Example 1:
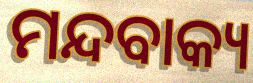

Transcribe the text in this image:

ମନ୍ଦବାକ୍ୟ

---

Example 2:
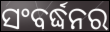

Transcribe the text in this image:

ସଂବର୍ଦ୍ଧନର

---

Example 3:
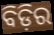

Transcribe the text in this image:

ବିଡ଼ିର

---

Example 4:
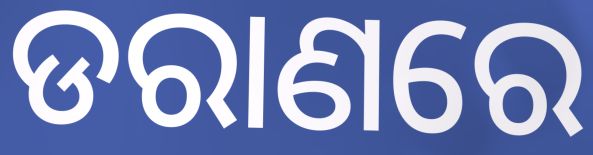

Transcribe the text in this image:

ଡରାଣରେ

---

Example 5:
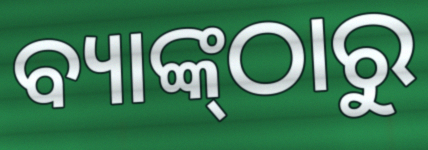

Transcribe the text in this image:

ବ୍ୟାଙ୍କ୍‌ଠାରୁ